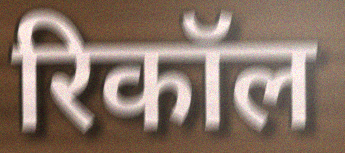
रिकॉल